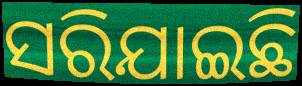
ସରିଯାଇଛି